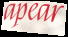
apear